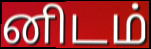
னிடம்